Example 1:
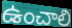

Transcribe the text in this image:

ఉంచాలి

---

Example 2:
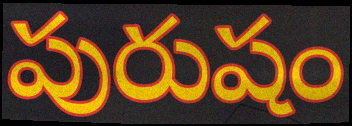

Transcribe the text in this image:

పురుషం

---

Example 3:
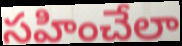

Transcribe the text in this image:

సహించేలా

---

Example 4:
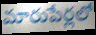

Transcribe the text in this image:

మారుపేర్లలో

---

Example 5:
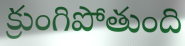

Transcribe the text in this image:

క్రుంగిపోతుంది